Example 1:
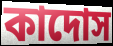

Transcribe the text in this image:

কাদোস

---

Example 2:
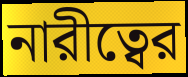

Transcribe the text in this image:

নারীত্বের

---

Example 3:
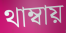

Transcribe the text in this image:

থাম্বায়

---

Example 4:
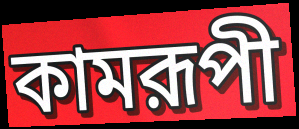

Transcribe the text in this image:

কামরূপী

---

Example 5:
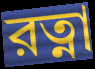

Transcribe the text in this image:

রত্না